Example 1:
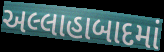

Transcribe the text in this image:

અલ્લાહાબાદમાં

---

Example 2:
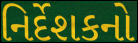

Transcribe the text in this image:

નિર્દેશકનો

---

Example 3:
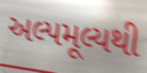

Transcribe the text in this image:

અલ્પમૂલ્યથી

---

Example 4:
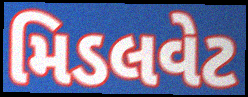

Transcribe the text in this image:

મિડલવેટ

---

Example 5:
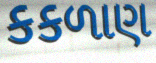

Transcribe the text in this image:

કકળાણ